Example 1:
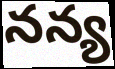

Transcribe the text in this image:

నన్య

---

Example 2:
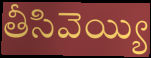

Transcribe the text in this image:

తీసివెయ్యి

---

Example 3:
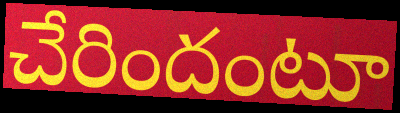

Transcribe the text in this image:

చేరిందంటూ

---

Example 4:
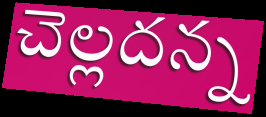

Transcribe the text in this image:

చెల్లదన్న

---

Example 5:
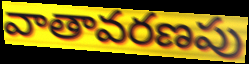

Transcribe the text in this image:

వాతావరణపు